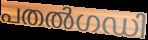
പതൽഗഡി